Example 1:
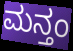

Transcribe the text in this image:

ಮನ್ತಂ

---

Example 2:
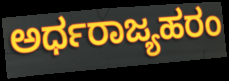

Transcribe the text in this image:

ಅರ್ಧರಾಜ್ಯಹರಂ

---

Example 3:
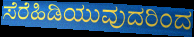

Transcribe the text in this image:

ಸೆರೆಹಿಡಿಯುವುದರಿಂದ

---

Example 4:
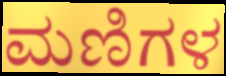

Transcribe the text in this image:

ಮಣಿಗಳ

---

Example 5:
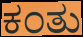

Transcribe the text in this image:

ಕಂತು